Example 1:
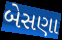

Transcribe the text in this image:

બેસણા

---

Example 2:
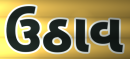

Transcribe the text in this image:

ઉઠાવ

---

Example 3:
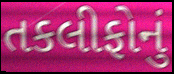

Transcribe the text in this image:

તકલીફોનું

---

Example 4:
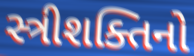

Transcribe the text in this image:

સ્ત્રીશક્તિનો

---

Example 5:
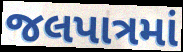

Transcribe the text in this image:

જલપાત્રમાં